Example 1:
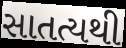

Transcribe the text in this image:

સાતત્યથી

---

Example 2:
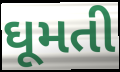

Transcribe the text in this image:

ઘૂમતી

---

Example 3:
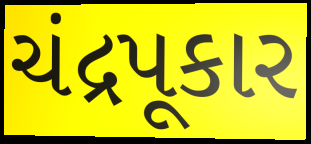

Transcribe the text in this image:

ચંદ્રપૂકાર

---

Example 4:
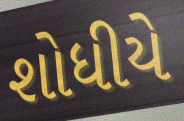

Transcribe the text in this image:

શોધીયે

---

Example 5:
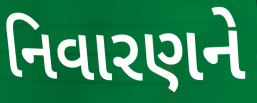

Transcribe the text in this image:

નિવારણને